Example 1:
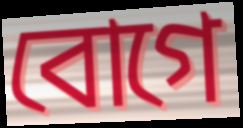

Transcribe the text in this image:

বোগে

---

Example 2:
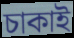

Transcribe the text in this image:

চাকাই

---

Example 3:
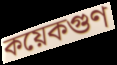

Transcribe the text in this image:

কয়েকগুণ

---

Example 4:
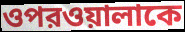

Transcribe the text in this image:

ওপরওয়ালাকে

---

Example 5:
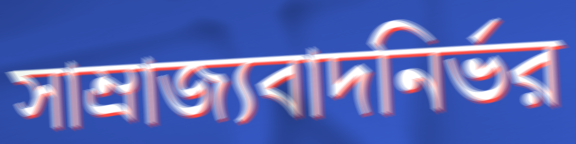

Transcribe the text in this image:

সাম্রাজ্যবাদনির্ভর